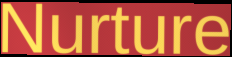
Nurture